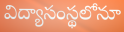
విద్యాసంస్థలోనూ